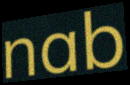
nab